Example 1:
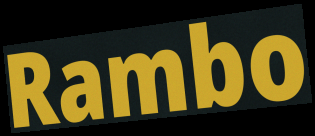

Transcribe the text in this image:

Rambo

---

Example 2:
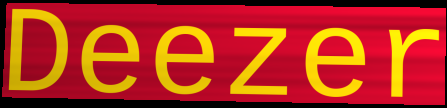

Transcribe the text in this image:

Deezer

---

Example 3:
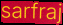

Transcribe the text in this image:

sarfraj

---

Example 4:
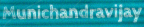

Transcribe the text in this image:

Munichandravijay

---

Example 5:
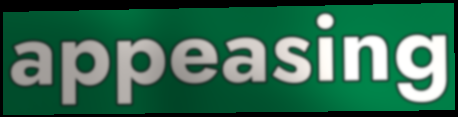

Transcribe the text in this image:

appeasing